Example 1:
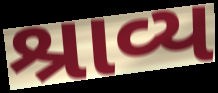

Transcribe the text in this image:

શ્રાવ્ય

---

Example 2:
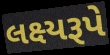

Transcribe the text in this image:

લક્ષ્યરૂપે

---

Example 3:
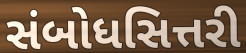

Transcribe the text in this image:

સંબોધસિત્તરી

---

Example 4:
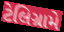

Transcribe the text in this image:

ટેલિગ્રામે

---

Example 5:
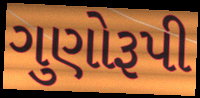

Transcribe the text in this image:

ગુણોરૂપી